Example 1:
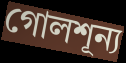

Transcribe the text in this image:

গোলশূন্য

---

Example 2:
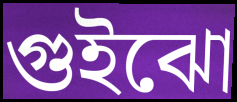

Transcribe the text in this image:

গুইঝো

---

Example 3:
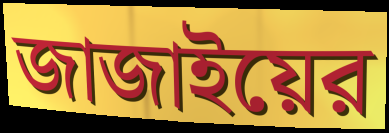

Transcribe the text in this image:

জাজাইয়ের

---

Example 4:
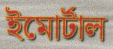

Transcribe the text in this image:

ইমোর্টাল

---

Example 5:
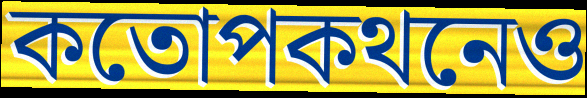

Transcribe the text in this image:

কতোপকথনেও